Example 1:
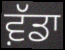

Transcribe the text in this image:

ਵ਼ੱਡਾ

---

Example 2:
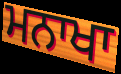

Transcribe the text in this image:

ਮਨਾਖਾ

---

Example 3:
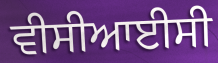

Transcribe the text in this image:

ਵੀਸੀਆਈਸੀ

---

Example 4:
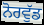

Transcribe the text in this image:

ਨੋਰਵੁੱਡ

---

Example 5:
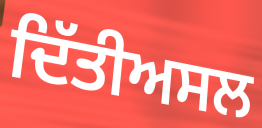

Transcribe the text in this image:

ਦਿੱਤੀਅਸਲ